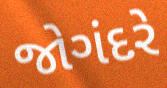
જોગંદરે